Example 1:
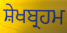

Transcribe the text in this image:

ਸ਼ੇਖਬ੍ਰਹਮ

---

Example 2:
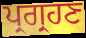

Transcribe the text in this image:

ਪ੍ਰਗ੍ਰਹਣ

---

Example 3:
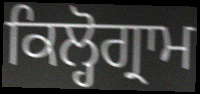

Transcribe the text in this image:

ਕਿਲ੍ਹੋਗ੍ਰਾਮ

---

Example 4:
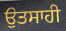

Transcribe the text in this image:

ਉਤਸਾਹੀ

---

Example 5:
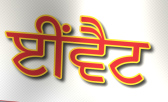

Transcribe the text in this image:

ਈਂਵੈਟ